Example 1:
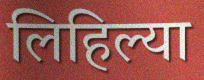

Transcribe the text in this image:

लिहिल्या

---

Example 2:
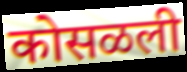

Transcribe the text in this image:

कोसळली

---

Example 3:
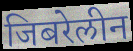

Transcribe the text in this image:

जिबरेलीन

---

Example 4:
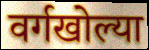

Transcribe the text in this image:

वर्गखोल्या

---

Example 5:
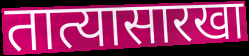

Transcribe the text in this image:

तात्यासारखा